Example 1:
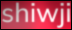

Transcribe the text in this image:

shiwji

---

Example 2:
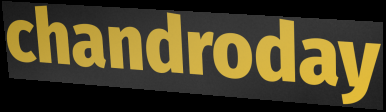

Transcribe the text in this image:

chandroday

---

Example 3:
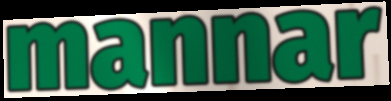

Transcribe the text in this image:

mannar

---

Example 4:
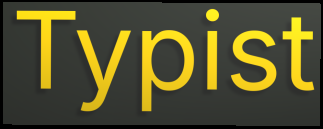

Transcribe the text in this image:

Typist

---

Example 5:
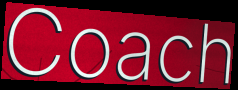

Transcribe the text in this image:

Coach